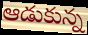
ఆడుకున్న